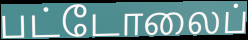
பட்டோலைப்